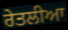
ਰੇਤਲੀਆ